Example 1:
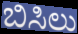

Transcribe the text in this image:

ಬಿಸಿಲು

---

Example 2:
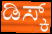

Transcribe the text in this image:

ಡಿಸ್ಕ್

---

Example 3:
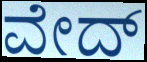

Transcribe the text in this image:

ವೇದ್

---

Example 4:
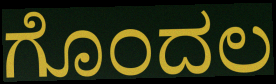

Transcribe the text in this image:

ಗೊಂದಲ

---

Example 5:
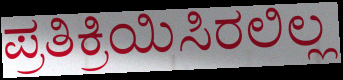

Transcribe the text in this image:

ಪ್ರತಿಕ್ರಿಯಿಸಿರಲಿಲ್ಲ